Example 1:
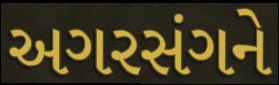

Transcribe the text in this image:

અગરસંગને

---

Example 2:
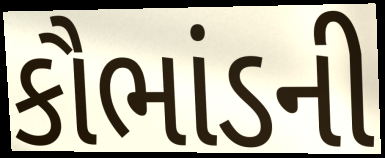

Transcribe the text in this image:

કૌભાંડની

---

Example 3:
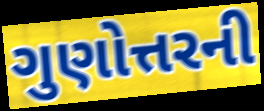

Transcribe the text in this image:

ગુણોત્તરની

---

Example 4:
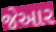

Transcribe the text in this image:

જેઆર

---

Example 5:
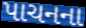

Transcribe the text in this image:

પાચનના